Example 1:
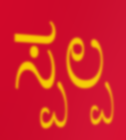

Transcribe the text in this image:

ಸ್ಪಲ್ಪ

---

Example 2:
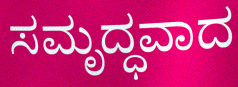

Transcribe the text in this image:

ಸಮೃದ್ಧವಾದ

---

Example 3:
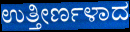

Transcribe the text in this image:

ಉತ್ತೀರ್ಣಳಾದ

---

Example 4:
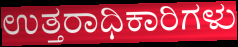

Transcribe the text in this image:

ಉತ್ತರಾಧಿಕಾರಿಗಳು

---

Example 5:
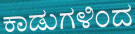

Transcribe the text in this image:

ಕಾಡುಗಳಿಂದ